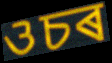
ওচৰ